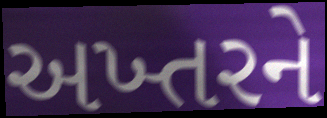
અખ્તરને